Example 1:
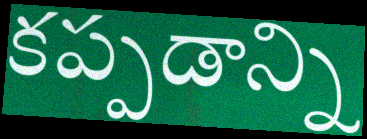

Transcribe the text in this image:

కప్పడాన్ని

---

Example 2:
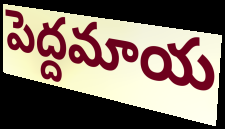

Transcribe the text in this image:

పెద్దమాయ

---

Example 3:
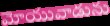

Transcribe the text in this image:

మోయువాడును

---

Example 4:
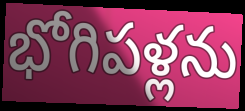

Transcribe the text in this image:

భోగిపళ్లను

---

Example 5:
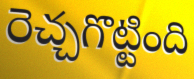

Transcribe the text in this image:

రెచ్చగొట్టింది